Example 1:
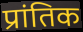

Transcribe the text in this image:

प्रांतिक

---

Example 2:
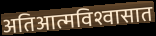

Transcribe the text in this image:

अतिआत्मविश्वासात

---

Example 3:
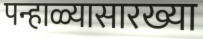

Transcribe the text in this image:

पन्हाळ्यासारख्या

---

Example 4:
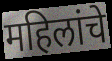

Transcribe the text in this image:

महिलांचे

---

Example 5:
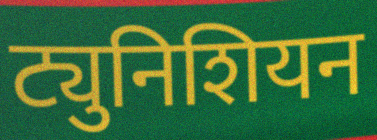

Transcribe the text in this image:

ट्युनिशियन